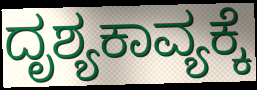
ದೃಶ್ಯಕಾವ್ಯಕ್ಕೆ